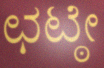
ಛಟ್ಠೇ